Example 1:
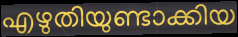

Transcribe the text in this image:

എഴുതിയുണ്ടാക്കിയ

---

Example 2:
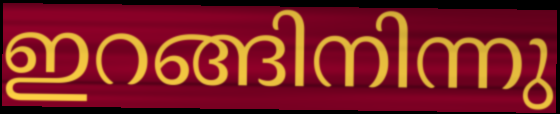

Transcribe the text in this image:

ഇറങ്ങിനിന്നു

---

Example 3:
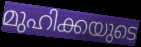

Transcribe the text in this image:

മുഹിക്കയുടെ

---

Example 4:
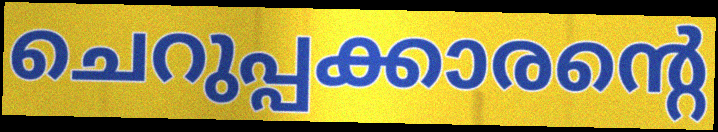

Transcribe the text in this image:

ചെറുപ്പക്കാരന്റെ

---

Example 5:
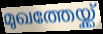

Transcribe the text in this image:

മുഖത്തേയ്ക്ക്